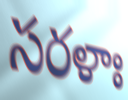
సరళాః